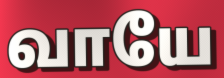
வாயே